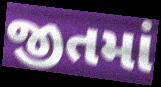
જીતમાં